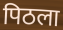
पिठला